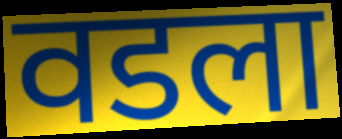
वडला